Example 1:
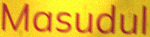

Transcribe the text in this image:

Masudul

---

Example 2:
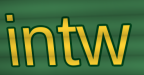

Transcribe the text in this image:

intw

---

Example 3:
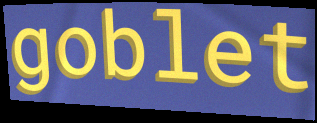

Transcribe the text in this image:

goblet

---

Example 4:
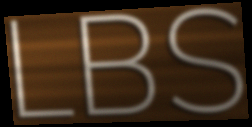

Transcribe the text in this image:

LBS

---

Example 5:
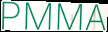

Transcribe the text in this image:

PMMA